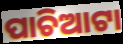
ପାଚିଆଟା